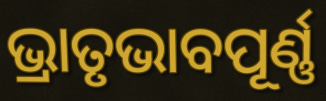
ଭ୍ରାତୃଭାବପୂର୍ଣ୍ଣ